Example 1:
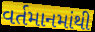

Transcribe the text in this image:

વર્તમાનમાંથી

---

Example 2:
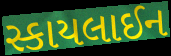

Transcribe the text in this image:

સ્કાયલાઈન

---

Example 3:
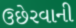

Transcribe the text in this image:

ઉછેરવાની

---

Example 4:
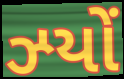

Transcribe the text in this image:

ઝ્યોં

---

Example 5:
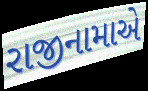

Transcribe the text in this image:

રાજીનામાએ